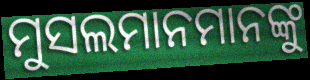
ମୁସଲମାନମାନଙ୍କୁ